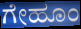
ಗೇಹೂಂ